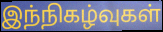
இந்நிகழ்வுகள்